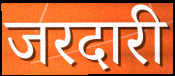
जरदारी